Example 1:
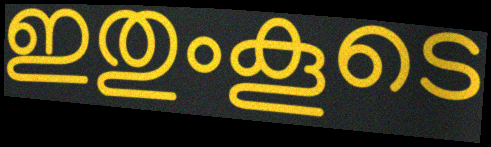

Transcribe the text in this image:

ഇതുംകൂടെ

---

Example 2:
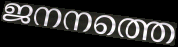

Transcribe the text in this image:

ജനനത്തെ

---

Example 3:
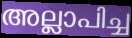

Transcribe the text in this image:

അല്ലാപിച്ച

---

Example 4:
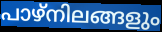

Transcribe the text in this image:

പാഴ്നിലങ്ങളും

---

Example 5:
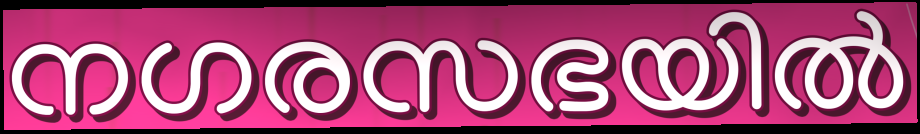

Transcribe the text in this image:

നഗരസഭയിൽ